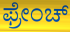
ಫ್ರೇಂಚ್